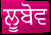
ਲੂਬੋਵ